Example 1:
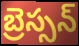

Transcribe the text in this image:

బ్రెస్సన్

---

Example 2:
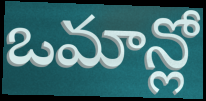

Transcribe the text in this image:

ఒమాన్లో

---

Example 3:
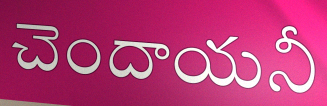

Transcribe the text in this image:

చెందాయనీ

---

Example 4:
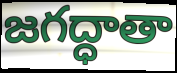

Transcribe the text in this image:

జగద్ధాతా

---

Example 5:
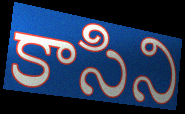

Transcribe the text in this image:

కాసిని